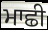
ਮਾਛੀ